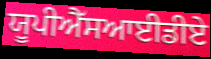
ਯੂਪੀਐੱਸਆਈਡੀਏ